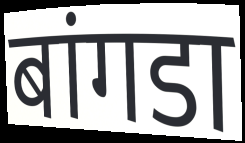
बांगडा